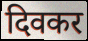
दिवकर